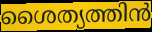
ശൈത്യത്തിൻ